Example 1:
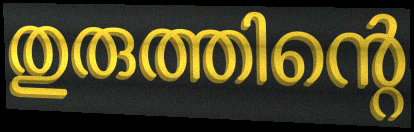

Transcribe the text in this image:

തുരുത്തിന്റെ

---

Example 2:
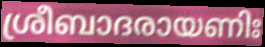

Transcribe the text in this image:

ശ്രീബാദരായണിഃ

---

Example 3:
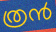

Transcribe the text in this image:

ത്രൻ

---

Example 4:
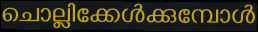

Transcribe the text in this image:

ചൊല്ലിക്കേൾക്കുമ്പോൾ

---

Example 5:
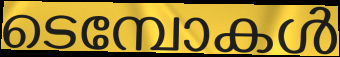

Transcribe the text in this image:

ടെമ്പോകൾ